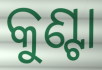
କୁଣ୍ଟା